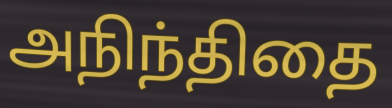
அநிந்திதை